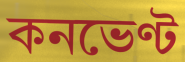
কনভেণ্ট